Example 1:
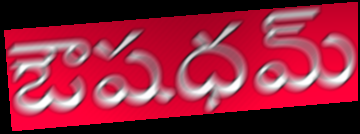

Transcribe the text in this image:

ఔషధమ్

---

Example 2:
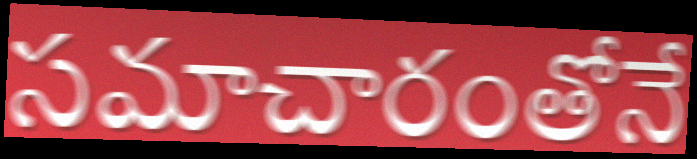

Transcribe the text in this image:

సమాచారంతోనే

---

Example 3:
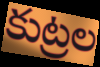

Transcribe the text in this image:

కుట్రల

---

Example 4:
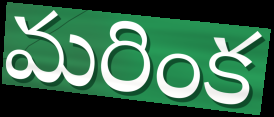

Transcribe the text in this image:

మరింక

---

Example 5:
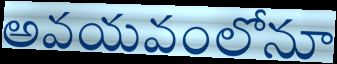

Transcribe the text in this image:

అవయవంలోనూ